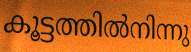
കൂട്ടത്തിൽനിന്നു